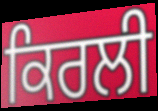
ਕਿਰਲੀ